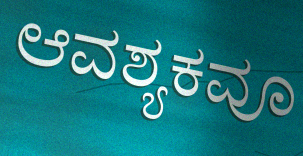
ಆವಶ್ಯಕವೂ